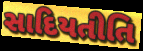
સાદિયતીતિ